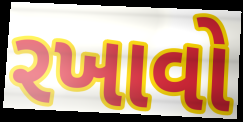
રખાવો